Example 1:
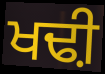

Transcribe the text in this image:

ਖਢ਼ੀ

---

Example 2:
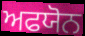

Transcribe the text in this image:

ਅਫਯੋਨ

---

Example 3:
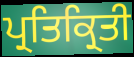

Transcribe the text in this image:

ਪ੍ਰਤਿਕ੍ਰਿਤੀ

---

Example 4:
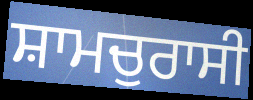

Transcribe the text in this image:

ਸ਼ਾਮਚੁਰਾਸੀ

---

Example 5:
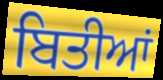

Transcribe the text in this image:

ਬਿਤੀਆਂ